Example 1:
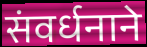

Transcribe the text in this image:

संवर्धनाने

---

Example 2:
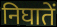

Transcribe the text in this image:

निघातें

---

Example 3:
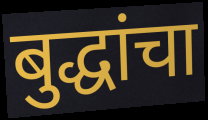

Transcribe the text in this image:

बुद्धांचा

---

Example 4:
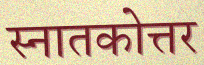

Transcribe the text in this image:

स्नातकोत्तर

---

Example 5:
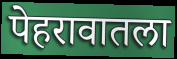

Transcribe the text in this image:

पेहरावातला